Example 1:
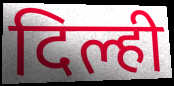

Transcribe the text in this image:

दिल्ही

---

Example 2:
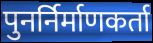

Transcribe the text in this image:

पुनर्निर्माणकर्ता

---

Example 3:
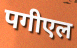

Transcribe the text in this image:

पगीएल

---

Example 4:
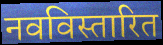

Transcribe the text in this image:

नवविस्तारित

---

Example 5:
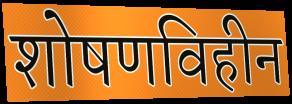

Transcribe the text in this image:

शोषणविहीन